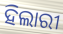
ହିଲାରୀ